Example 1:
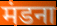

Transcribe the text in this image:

मंडना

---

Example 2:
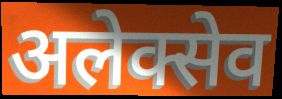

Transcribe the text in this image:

अलेक्सेव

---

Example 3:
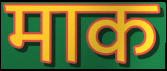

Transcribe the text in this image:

माक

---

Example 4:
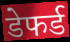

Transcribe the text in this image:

डेफर्ड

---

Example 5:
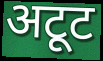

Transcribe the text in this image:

अटूट